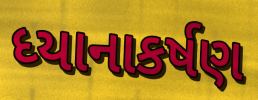
ધ્યાનાકર્ષણ